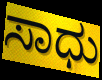
ಸಾಧು